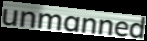
unmanned